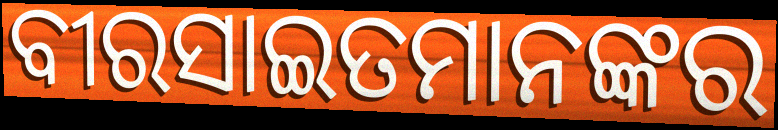
ବୀରସାଇତମାନଙ୍କର